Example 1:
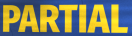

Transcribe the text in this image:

PARTIAL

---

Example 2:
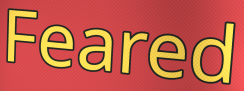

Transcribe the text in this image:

Feared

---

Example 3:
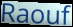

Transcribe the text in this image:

Raouf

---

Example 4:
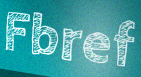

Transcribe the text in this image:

Fbref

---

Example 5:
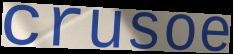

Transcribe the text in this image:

crusoe